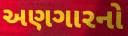
અણગારનો